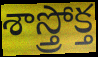
శాస్త్రోక్త